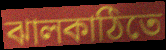
ঝালকাঠিতে